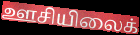
ஊசியிலைக்